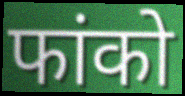
फांको